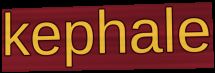
kephale